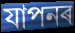
যাপনৰ